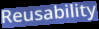
Reusability